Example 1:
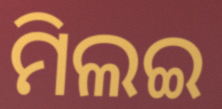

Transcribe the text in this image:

ମିଲଇ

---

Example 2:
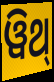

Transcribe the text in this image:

ୱିଥ୍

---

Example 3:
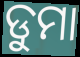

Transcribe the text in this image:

ଡୁମା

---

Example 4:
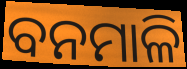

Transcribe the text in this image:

ବନମାଳି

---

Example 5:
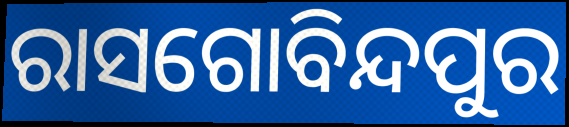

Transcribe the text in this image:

ରାସଗୋବିନ୍ଦପୁର